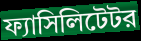
ফ্যাসিলিটেটর